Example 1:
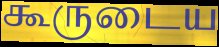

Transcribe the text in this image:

கூருடைய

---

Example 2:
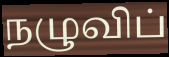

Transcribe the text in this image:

நழுவிப்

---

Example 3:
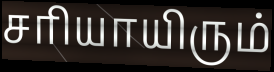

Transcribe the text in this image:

சரியாயிரும்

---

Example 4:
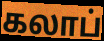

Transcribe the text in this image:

கலாப்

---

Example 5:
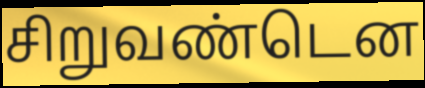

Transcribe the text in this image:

சிறுவண்டென